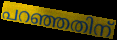
പറഞ്ഞതിന്